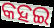
କହଇ